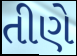
તીણે